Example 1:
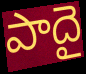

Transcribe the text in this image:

పాదై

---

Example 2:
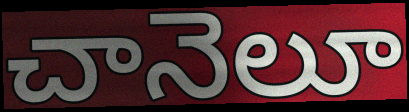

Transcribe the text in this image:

చానెలూ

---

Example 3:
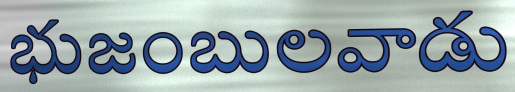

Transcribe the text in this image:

భుజంబులవాడు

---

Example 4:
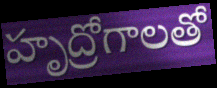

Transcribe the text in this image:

హృద్రోగాలతో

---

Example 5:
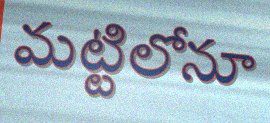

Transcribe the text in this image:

మట్టిలోనూ